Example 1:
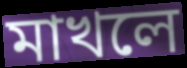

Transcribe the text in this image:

মাখলে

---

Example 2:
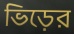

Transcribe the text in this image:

ভিড়ের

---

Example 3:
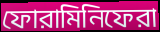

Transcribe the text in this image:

ফোরামিনিফেরা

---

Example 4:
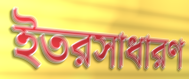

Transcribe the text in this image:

ইতরসাধারণ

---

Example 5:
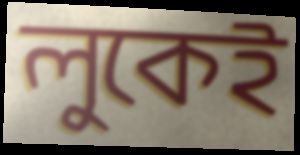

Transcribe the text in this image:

লুকেই